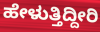
ಹೇಳುತ್ತಿದ್ದೀರಿ